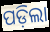
ପଡ଼ିଲା